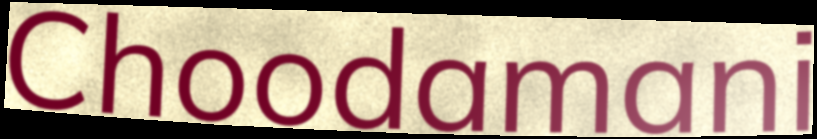
Choodamani